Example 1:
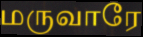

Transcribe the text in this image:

மருவாரே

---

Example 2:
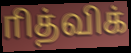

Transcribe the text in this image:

ரித்விக்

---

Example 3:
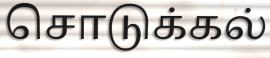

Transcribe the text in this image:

சொடுக்கல்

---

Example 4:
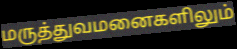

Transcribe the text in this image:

மருத்துவமனைகளிலும்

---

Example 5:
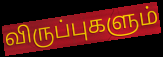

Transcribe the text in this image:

விருப்புகளும்